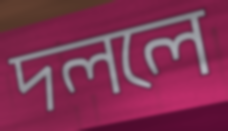
দললে